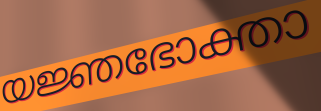
യജ്ഞഭോക്താ